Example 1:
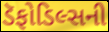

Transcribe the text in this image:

ડૅફોડિલ્સની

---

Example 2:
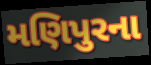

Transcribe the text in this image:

મણિપુરના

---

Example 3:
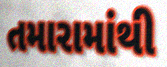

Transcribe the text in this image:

તમારામાંથી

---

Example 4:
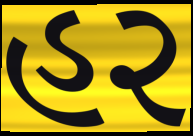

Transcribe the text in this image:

હર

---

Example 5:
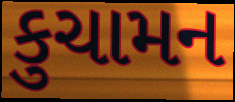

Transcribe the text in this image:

કુચામન